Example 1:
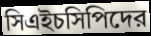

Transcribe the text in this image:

সিএইচসিপিদের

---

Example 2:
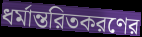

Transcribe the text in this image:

ধর্মান্তরিতকরণের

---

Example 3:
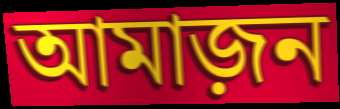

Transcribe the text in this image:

আমাজ়ন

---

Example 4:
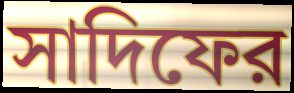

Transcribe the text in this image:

সাদিফের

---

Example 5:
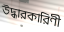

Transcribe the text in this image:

উদ্ধারকারিণী